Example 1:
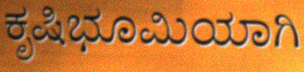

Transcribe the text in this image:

ಕೃಷಿಭೂಮಿಯಾಗಿ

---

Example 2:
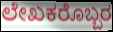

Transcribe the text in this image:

ಲೇಖಕರೊಬ್ಬರ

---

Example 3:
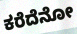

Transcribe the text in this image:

ಕರೆದೆನೋ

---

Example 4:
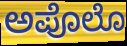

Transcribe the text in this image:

ಅಪೊಲೊ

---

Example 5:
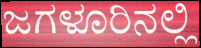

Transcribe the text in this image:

ಜಗಳೂರಿನಲ್ಲಿ